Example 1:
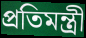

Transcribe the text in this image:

প্রতিমন্ত্রী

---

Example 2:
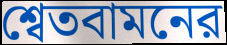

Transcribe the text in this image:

শ্বেতবামনের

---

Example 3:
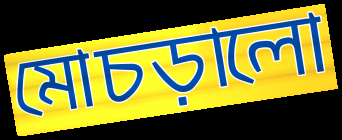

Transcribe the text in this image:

মোচড়ালো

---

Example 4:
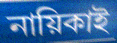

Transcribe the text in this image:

নায়িকাই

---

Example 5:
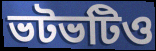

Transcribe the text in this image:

ভটভটিও